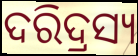
ଦରିଦ୍ରସ୍ୟ